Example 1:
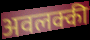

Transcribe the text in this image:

अवलक्की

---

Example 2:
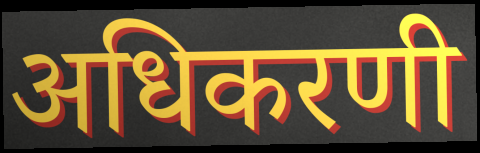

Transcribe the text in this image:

अधिकरणी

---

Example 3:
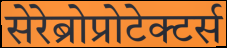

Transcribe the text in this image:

सेरेब्रोप्रोटेक्टर्स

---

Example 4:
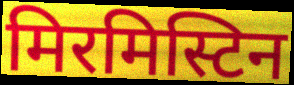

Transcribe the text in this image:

मिरमिस्टिन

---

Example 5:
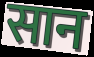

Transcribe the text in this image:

सान